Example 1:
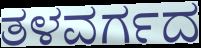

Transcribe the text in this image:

ತಳವರ್ಗದ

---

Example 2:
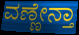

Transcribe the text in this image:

ವಣ್ಣೇನ್ತಾ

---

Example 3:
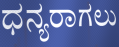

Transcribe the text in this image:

ಧನ್ಯರಾಗಲು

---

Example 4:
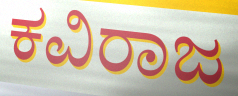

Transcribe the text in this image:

ಕವಿರಾಜ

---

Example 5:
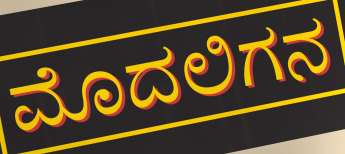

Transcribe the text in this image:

ಮೊದಲಿಗನ